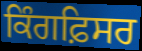
ਕਿੰਗਫ਼ਿਸਰ